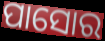
ପାସୋର